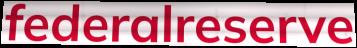
federalreserve